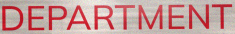
DEPARTMENT